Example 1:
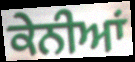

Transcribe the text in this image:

ਕੇਨੀਆਂ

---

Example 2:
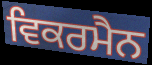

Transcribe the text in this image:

ਵਿਕਰਮੈਨ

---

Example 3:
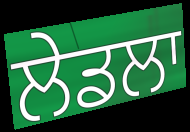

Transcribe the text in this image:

ਲੇਡਲਾ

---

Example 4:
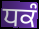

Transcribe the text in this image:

ਧਕੰ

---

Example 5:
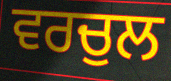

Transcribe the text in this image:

ਵਰਚੁਲ